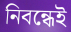
নিবন্ধেই